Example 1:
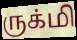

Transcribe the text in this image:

ருக்மி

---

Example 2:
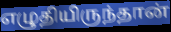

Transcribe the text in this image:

எழுதியிருந்தான்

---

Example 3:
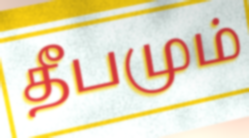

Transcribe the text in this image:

தீபமும்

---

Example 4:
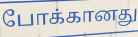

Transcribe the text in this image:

போக்கானது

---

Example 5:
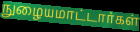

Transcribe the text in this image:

நுழையமாட்டார்கள்